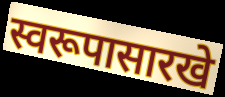
स्वरूपासारखे